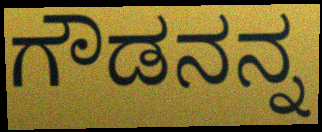
ಗೌಡನನ್ನ